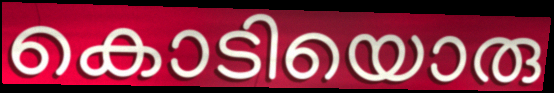
കൊടിയൊരു